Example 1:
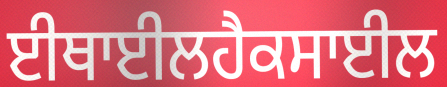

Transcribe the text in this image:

ਈਥਾਈਲਹੈਕਸਾਈਲ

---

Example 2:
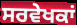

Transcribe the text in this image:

ਸਰਵੇਖਕਾਂ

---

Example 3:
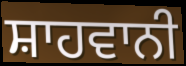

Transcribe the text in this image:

ਸ਼ਾਹਵਾਨੀ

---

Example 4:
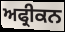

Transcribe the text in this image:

ਅਫ੍ਰੀਕਨ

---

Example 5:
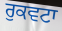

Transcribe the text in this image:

ਰੁਕਵਟਾ